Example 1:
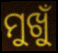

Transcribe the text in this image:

ମୁଖୁଁ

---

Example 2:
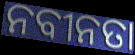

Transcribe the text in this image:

ନବୀନତା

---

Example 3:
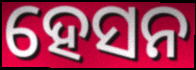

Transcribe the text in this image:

ହେସନ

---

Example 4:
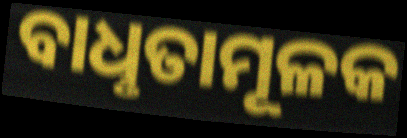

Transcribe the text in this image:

ବାଧୢତାମୂଳକ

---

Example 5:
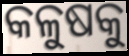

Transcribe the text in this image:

କଳୁଷକୁ